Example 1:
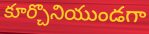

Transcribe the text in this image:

కూర్చొనియుండగా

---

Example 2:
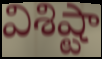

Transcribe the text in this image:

విశిష్టా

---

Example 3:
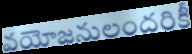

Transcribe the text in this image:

వయోజనులందరికీ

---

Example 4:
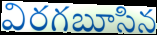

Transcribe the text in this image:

విరగబూసిన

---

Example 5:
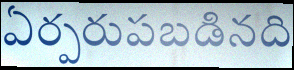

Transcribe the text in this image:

ఏర్పరుపబడినది